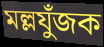
মল্লযুঁজক